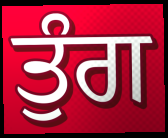
ਤੁੰਗ